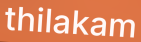
thilakam